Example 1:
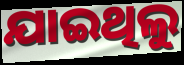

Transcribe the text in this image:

ଯାଇଥିଲୁ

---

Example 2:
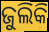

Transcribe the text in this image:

ଜୁଲିକି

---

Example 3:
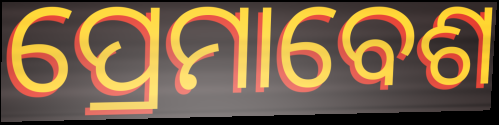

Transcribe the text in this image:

ପ୍ରେମାବେଶ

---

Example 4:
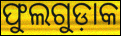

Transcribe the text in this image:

ଫୁଲଗୁଡ଼ାକ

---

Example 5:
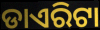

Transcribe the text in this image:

ଡାଏରିଟା